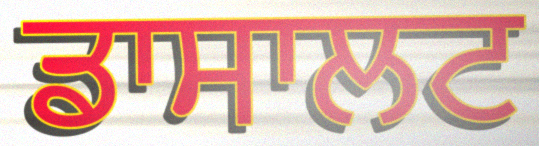
ਡਾਸਾਲਟ